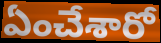
ఏంచేశారో